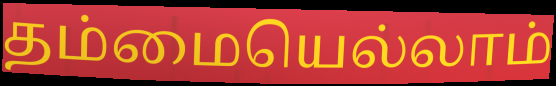
தம்மையெல்லாம்